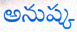
అనుష్క